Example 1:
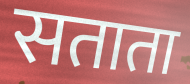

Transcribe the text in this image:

सताता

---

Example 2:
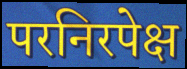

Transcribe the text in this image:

परनिरपेक्ष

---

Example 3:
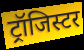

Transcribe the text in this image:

ट्रॉजिस्टर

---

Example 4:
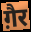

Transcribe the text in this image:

ग़ैर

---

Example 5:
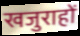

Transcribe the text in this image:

खजुराहों